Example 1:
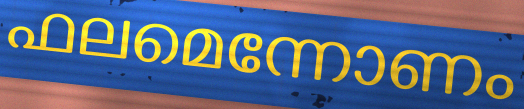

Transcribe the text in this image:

ഫലമെന്നോണം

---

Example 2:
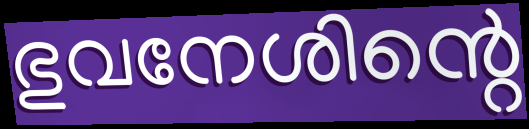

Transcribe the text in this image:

ഭുവനേശിന്റെ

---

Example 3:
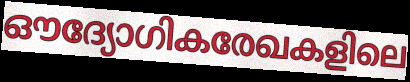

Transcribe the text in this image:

ഔദ്യോഗികരേഖകളിലെ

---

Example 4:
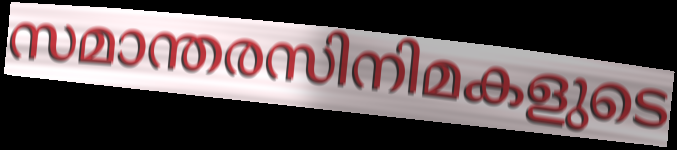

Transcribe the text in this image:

സമാന്തരസിനിമകളുടെ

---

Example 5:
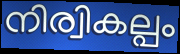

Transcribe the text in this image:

നിര്വികല്പം